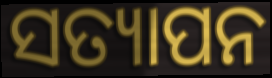
ସତ୍ୟାପନ